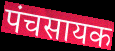
पंचसायक